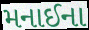
મનાઈના